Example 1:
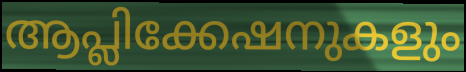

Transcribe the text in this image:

ആപ്ലിക്കേഷനുകളും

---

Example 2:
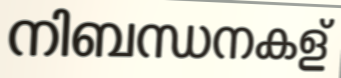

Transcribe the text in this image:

നിബന്ധനകള്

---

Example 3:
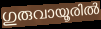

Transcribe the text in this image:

ഗുരുവായൂരിൽ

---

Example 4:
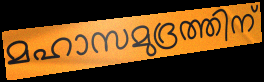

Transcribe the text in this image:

മഹാസമുദ്രത്തിന്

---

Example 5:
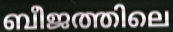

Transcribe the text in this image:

ബീജത്തിലെ